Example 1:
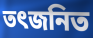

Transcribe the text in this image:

তৎজনিত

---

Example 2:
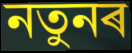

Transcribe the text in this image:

নতুনৰ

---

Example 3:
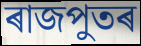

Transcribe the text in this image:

ৰাজপুতৰ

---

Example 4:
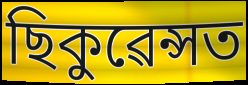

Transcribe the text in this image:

ছিকুৱেন্সত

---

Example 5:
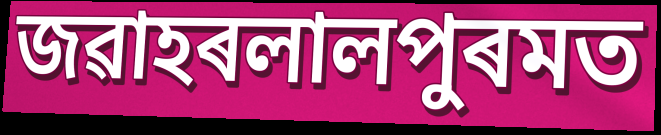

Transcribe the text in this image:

জৱাহৰলালপুৰমত